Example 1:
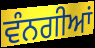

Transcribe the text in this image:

ਵੰਨਗੀਆਂ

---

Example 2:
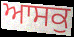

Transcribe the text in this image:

ਆਸਕੁ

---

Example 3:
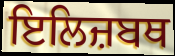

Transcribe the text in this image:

ਇਲਿਜ਼ਬਥ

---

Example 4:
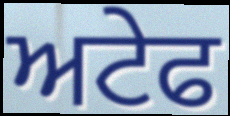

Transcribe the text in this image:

ਅਟੇਫ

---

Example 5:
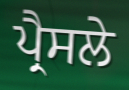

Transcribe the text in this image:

ਪ੍ਰੈਸਲੇ